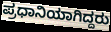
ಪ್ರಧಾನಿಯಾಗಿದ್ದರು